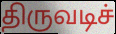
திருவடிச்